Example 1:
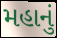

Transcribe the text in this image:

મહાનું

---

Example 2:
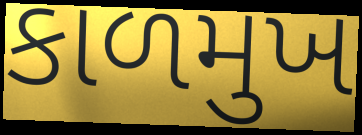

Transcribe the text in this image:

કાળમુખ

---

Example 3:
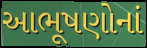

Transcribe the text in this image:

આભૂષણોનાં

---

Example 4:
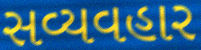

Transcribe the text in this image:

સવ્યવહાર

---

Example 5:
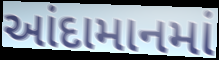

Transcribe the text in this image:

આંદામાનમાં